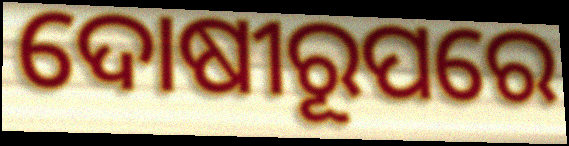
ଦୋଷୀରୂପରେ